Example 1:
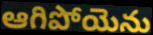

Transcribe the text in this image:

ఆగిపోయెను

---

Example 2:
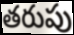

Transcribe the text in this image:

తరుపు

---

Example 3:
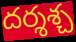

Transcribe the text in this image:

దర్శశ్చ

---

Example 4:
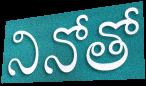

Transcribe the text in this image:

నినోతో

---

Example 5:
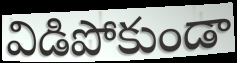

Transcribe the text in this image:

విడిపోకుండా